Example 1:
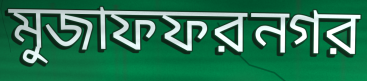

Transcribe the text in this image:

মুজাফফরনগর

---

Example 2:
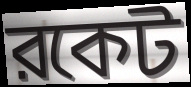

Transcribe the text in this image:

রকেট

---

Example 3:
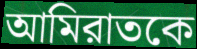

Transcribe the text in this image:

আমিরাতকে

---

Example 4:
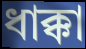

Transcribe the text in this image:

ধাক্কা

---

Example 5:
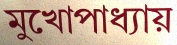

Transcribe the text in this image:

মুখোপাধ্যায়